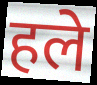
हले